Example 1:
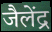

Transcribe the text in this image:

जैलेंद्र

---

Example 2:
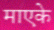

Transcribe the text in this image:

माएके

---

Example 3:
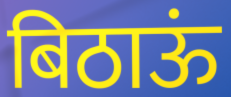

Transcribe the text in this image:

बिठाऊं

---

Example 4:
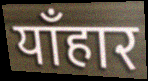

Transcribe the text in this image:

याँहार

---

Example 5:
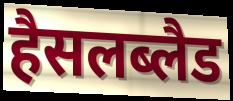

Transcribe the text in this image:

हैसलब्लैड